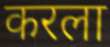
करला